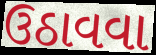
ઉઠાવવા